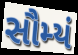
સૌમ્યં